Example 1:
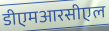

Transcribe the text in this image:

डीएमआरसीएल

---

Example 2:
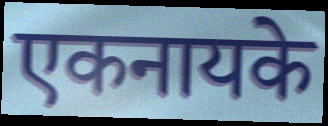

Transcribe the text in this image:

एकनायके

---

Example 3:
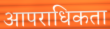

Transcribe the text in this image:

आपराधिकता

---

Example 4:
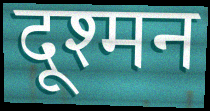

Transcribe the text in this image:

दूश्मन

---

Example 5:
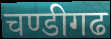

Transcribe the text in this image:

चण्डीगढ